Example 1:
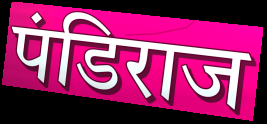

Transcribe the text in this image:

पंडिराज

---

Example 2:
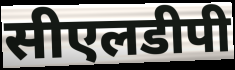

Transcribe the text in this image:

सीएलडीपी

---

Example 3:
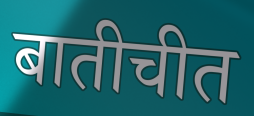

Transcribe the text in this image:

बातीचीत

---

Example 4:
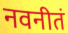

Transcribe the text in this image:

नवनीतं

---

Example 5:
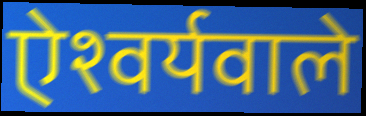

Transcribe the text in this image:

ऐश्वर्यवाले